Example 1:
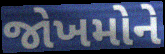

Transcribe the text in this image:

જોખમોને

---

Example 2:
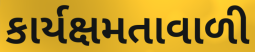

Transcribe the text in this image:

કાર્યક્ષમતાવાળી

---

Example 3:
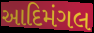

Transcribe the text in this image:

આદિમંગલ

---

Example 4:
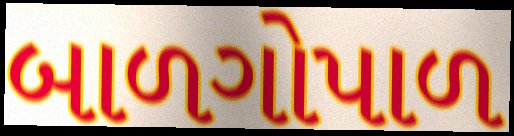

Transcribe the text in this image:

બાળગોપાળ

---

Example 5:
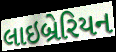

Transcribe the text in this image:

લાઇબ્રેરિયન